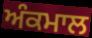
ਅੰਕਮਾਲ